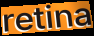
retina